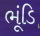
ભૂંડિ